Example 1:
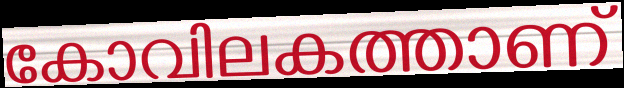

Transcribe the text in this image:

കോവിലകത്താണ്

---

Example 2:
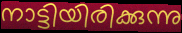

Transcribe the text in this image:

നാട്ടിയിരിക്കുന്നു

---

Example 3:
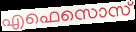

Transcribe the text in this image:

എഫെസൊസ്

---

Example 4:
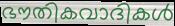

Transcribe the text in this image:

ഭൗതികവാദികൾ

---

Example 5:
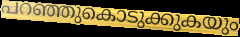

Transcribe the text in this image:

പറഞ്ഞുകൊടുക്കുകയും